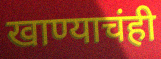
खाण्याचंही